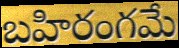
బహిరంగమే